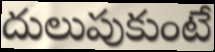
దులుపుకుంటే